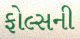
ફોલ્સની